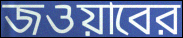
জওয়াবের